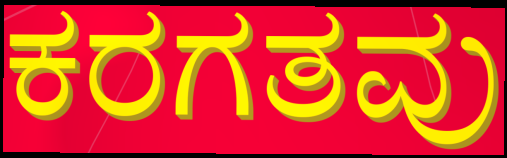
ಕರಗತವು